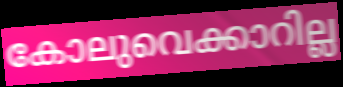
കോലുവെക്കാറില്ല